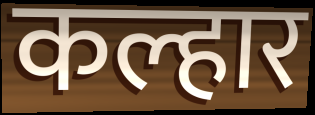
कल्हार